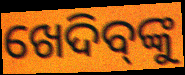
ଖେଦିବ୍‌ଙ୍କୁ